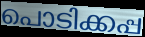
പൊടിക്കപ്പ